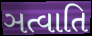
ઞત્વાતિ